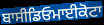
ਬਾਸੀਡਿਓਮਾਈਕੋਟਾ